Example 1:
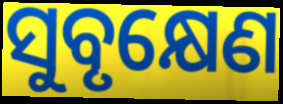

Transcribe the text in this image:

ସୁବୃକ୍ଷେଣ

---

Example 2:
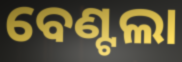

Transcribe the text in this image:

ବେଣ୍ଟଲା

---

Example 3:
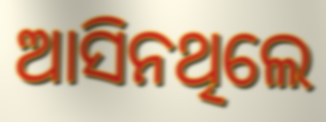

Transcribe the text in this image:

ଆସିନଥିଲେ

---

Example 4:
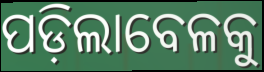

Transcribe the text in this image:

ପଡ଼ିଲାବେଳକୁ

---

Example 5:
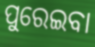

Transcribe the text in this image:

ପୁରେଇବା